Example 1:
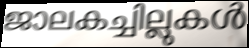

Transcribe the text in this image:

ജാലകച്ചില്ലുകൾ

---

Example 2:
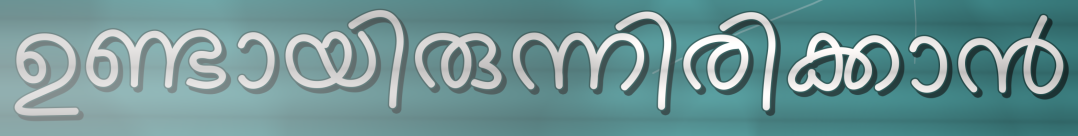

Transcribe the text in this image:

ഉണ്ടായിരുന്നിരിക്കാൻ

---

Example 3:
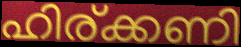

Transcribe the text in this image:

ഹിര്ക്കണി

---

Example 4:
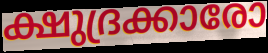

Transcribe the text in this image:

ക്ഷുദ്രക്കാരോ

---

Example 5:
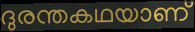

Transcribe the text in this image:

ദുരന്തകഥയാണ്